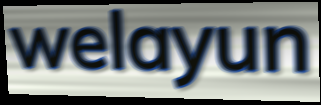
welayun